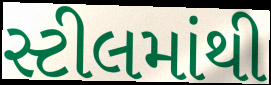
સ્ટીલમાંથી